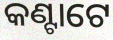
କଣ୍ଟାଟେ